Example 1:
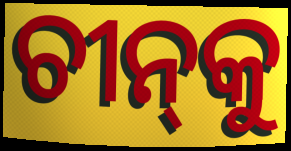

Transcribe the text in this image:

ଚୀନ୍‌କୁ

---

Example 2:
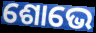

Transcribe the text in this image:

ଶୋଭେ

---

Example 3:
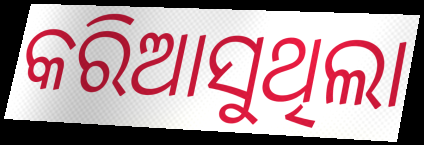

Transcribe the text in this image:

କରିଆସୁଥିଲା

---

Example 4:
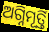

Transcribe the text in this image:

ଅଗ୍ନିମୂର୍ତ୍ତି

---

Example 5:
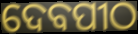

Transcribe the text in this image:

ଦେବପୀଠ